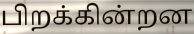
பிறக்கின்றன